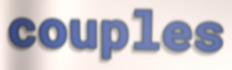
couples